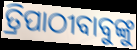
ତ୍ରିପାଠୀବାବୁଙ୍କୁ